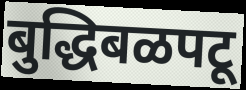
बुद्धिबळपटू